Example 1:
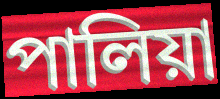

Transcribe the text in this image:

পালিয়া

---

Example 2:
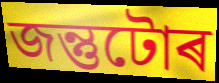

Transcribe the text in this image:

জন্তুটোৰ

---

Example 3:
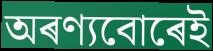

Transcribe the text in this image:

অৰণ্যবোৰেই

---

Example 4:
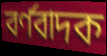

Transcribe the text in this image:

বৰ্ণবাদক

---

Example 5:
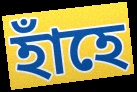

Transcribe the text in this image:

হাঁহে